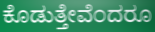
ಕೊಡುತ್ತೇವೆಂದರೂ